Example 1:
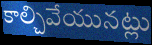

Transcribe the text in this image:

కాల్చివేయునట్లు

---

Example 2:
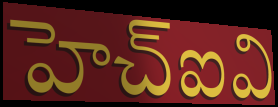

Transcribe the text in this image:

హెచ్ఐవి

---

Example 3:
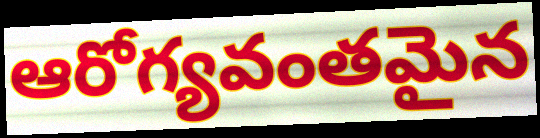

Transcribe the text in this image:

ఆరోగ్యవంతమైన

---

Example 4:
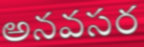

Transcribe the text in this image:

అనవసర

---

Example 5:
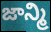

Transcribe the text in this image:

జాన్మి